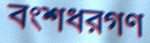
বংশধরগণ